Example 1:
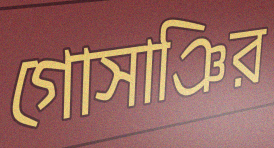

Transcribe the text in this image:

গোসাঞির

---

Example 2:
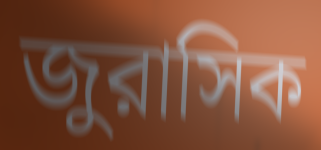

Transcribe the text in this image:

জুরাসিক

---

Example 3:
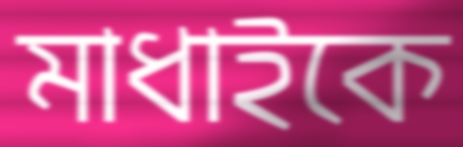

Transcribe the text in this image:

মাধাইকে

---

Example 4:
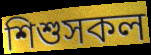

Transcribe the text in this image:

শিশুসকল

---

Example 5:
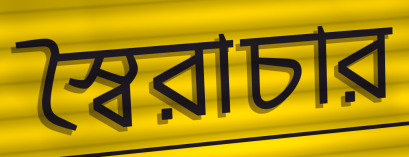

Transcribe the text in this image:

স্বৈরাচার